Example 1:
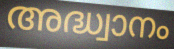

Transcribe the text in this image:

അദ്ധ്വാനം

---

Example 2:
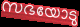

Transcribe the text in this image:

സഭയോടു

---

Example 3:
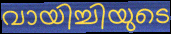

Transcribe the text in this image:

വായിച്ചിയുടെ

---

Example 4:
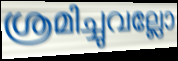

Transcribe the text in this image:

ശ്രമിച്ചുവല്ലോ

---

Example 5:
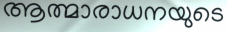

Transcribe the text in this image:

ആത്മാരാധനയുടെ